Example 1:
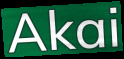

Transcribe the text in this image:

Akai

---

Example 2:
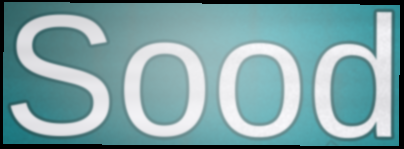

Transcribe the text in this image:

Sood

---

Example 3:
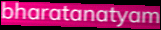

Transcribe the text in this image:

bharatanatyam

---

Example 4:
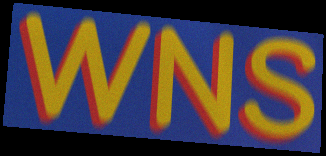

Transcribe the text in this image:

WNS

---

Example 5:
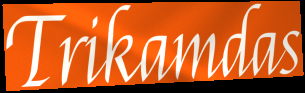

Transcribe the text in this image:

Trikamdas